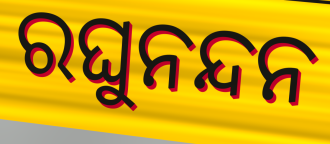
ରଘୁନନ୍ଦନ